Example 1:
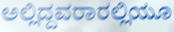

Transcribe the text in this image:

ಅಲ್ಲಿದ್ದವರಾರಲ್ಲಿಯೂ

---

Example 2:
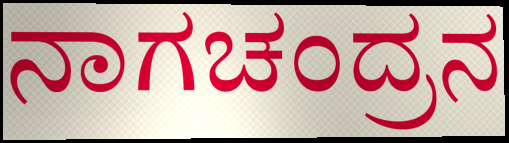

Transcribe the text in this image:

ನಾಗಚಂದ್ರನ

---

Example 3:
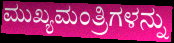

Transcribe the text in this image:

ಮುಖ್ಯಮಂತ್ರಿಗಳನ್ನು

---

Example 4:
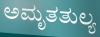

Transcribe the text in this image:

ಅಮೃತತುಲ್ಯ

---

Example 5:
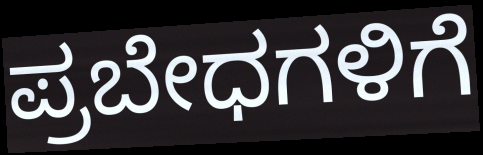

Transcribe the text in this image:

ಪ್ರಬೇಧಗಳಿಗೆ